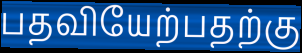
பதவியேற்பதற்கு